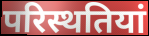
परिस्थतियां